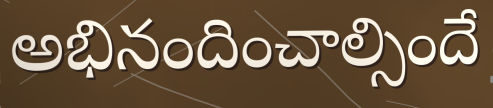
అభినందించాల్సిందే